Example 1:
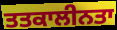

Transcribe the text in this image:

ਤਤਕਾਲੀਨਤਾ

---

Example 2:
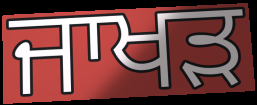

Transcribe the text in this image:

ਜਾਖੜ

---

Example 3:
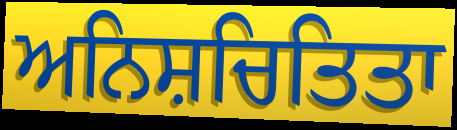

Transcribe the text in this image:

ਅਨਿਸ਼ਚਿਤਿਤਾ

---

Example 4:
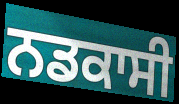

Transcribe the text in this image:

ਨਡਕਾਸੀ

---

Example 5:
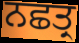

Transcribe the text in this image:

ਨਛਤ੍ਰ